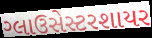
ગ્લાઉસેસ્ટરશાયર